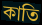
কাতি